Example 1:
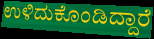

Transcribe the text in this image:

ಉಳಿದುಕೊಂಡಿದ್ದಾರೆ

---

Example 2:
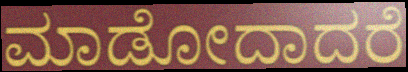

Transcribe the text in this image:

ಮಾಡೋದಾದರೆ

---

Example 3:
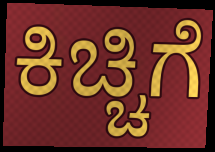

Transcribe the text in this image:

ಕಿಚ್ಚಿಗೆ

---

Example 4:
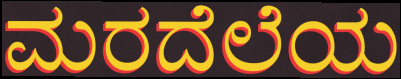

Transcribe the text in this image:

ಮರದೆಲೆಯ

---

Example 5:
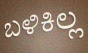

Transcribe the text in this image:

ಬಳಿಕಿಲ್ಲ